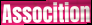
Assocition